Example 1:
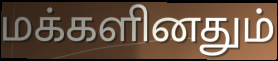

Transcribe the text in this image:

மக்களினதும்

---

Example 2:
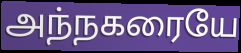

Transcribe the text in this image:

அந்நகரையே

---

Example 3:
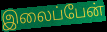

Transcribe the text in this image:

இலைப்பேன்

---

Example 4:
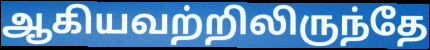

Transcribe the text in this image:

ஆகியவற்றிலிருந்தே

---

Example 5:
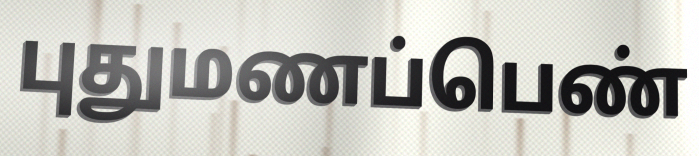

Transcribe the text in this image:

புதுமணப்பெண்